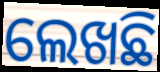
ଲେଖଛି